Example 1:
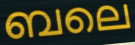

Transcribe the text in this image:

ബലെ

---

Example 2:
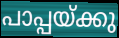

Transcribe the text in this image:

പാപ്പയ്ക്കു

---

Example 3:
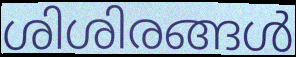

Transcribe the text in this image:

ശിശിരങ്ങൾ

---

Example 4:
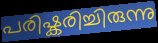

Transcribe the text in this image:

പരിഷ്കരിച്ചിരുന്നു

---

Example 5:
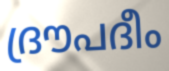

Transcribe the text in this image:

ദ്രൗപദീം